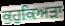
ਕੁਹੁਕਿਅੜਾ